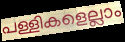
പള്ളികളെല്ലാം